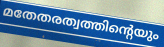
മതേതരത്വത്തിന്റെയും